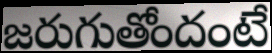
జరుగుతోందంటే